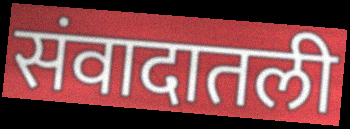
संवादातली